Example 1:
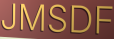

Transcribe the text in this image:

JMSDF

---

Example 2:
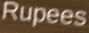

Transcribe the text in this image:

Rupees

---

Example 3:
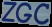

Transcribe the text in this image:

ZGC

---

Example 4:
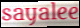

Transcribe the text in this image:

sayalee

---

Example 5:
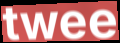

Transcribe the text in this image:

twee